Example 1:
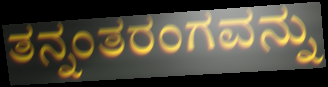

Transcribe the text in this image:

ತನ್ನಂತರಂಗವನ್ನು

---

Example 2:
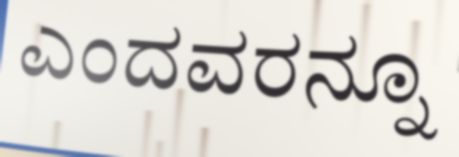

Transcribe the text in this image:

ಎಂದವರನ್ನೂ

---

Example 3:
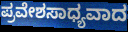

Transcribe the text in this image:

ಪ್ರವೇಶಸಾಧ್ಯವಾದ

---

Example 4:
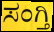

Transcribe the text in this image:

ಸಂಗ್ತಿ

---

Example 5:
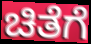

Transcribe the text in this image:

ಚಿತೆಗೆ